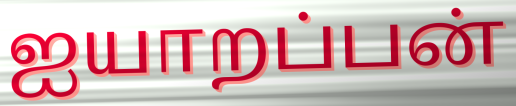
ஐயாறப்பன்